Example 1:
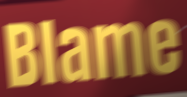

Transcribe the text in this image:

Blame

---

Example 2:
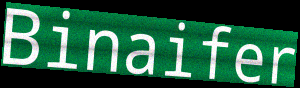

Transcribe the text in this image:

Binaifer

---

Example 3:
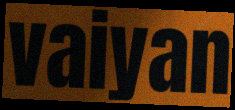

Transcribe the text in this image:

vaiyan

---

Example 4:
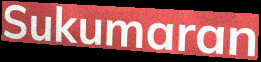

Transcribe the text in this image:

Sukumaran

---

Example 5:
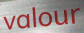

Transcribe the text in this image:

valour